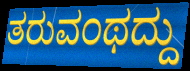
ತರುವಂಥದ್ದು